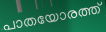
പാതയോരത്ത്